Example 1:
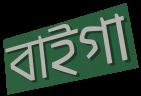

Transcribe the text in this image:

বাইগা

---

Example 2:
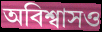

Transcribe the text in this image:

অবিশ্বাসও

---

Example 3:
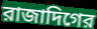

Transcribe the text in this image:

রাজাদিগের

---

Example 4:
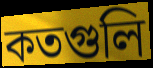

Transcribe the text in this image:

কতগুলি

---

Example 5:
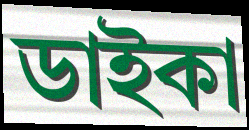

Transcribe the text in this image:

ডাইকা